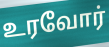
உரவோர்